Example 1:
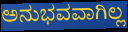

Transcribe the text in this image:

ಅನುಭವವಾಗಿಲ್ಲ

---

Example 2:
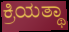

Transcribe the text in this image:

ಕ್ರಿಯತ್ಥಾ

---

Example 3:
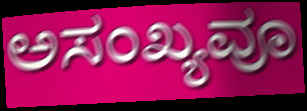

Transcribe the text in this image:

ಅಸಂಖ್ಯವೂ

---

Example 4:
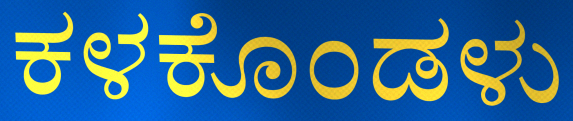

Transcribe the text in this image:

ಕಳಕೊಂಡಳು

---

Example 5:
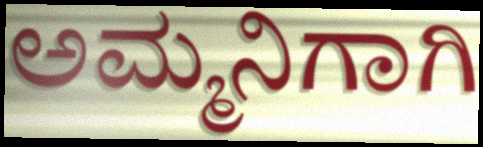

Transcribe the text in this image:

ಅಮ್ಮನಿಗಾಗಿ